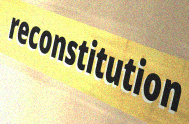
reconstitution